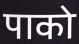
पाको